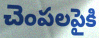
చెంపలపైకి